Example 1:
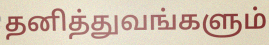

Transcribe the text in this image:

தனித்துவங்களும்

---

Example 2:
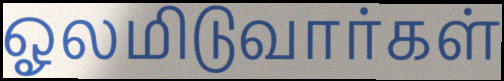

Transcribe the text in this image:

ஓலமிடுவார்கள்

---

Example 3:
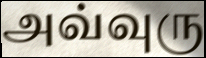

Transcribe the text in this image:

அவ்வுரு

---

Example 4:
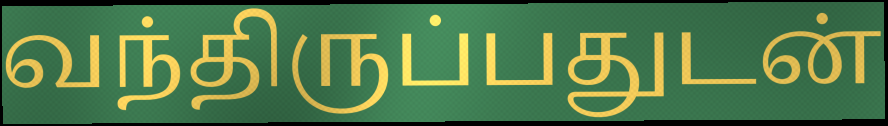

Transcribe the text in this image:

வந்திருப்பதுடன்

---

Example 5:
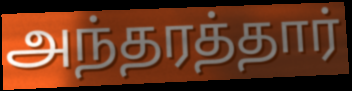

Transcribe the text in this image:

அந்தரத்தார்